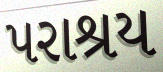
પરાશ્રય